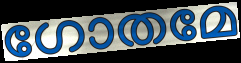
ഗോതമേ